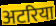
अटरिया